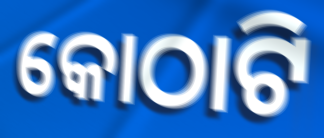
କୋଠାଟି